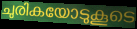
ചുരികയോടുകൂടെ